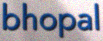
bhopal